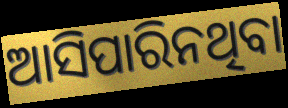
ଆସିପାରିନଥିବା